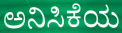
ಅನಿಸಿಕೆಯ